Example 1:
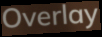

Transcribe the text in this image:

Overlay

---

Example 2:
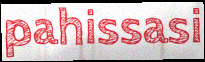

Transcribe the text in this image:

pahissasi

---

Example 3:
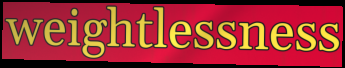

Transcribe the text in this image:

weightlessness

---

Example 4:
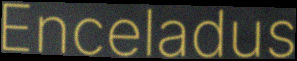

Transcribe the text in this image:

Enceladus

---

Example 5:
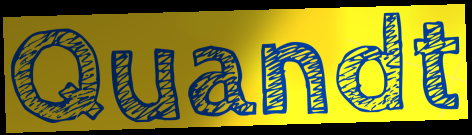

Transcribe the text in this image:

Quandt